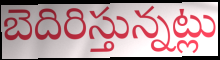
బెదిరిస్తున్నట్లు